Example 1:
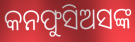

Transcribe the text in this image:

କନଫୁସିଅସଙ୍କ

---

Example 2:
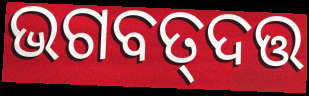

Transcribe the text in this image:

ଭଗବତ୍‌ଦତ୍ତ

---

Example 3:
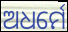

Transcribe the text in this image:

ଅଧର୍ମେ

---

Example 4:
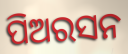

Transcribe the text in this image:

ପିଅରସନ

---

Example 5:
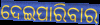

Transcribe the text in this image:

ଦେଇପାରିବାର